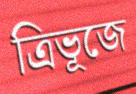
ত্ৰিভূজে